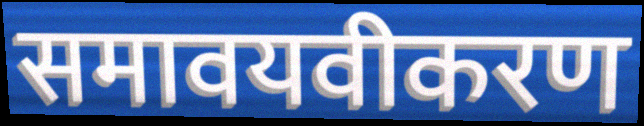
समावयवीकरण